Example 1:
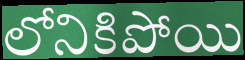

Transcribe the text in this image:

లోనికిపోయి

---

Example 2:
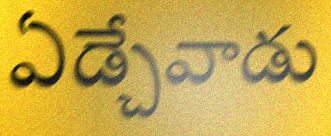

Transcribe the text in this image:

ఏడ్చేవాడు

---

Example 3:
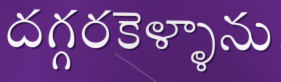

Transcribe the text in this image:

దగ్గరకెళ్ళాను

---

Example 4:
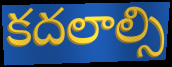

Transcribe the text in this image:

కదలాల్సి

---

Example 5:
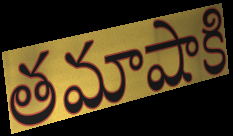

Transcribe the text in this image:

తమాషాకి